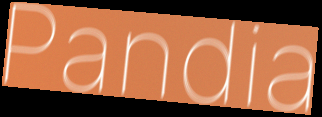
Pandia